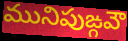
మునిపుఙ్గవౌ